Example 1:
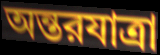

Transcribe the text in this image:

অন্তরযাত্রা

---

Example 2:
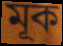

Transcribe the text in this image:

মূক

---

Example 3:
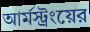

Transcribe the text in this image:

আর্মস্ট্রংয়ের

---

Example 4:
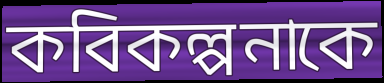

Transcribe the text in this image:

কবিকল্পনাকে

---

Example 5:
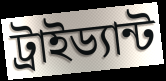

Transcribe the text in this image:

ট্রাইড্যান্ট